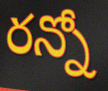
రన్నో